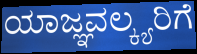
ಯಾಜ್ಞವಲ್ಕ್ಯರಿಗೆ